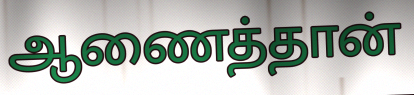
ஆணைத்தான்